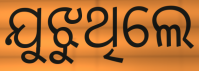
ଯୁଝୁଥିଲେ